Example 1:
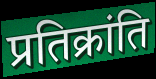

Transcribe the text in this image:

प्रतिक्रांति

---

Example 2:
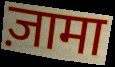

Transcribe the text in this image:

ज़ामा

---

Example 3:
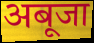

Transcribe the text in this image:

अबूजा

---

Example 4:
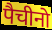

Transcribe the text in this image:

पैचीनो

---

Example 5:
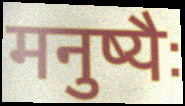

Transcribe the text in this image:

मनुष्यैः